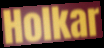
Holkar